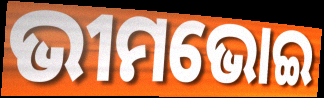
ଭୀମଭୋଇ